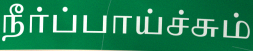
நீர்ப்பாய்ச்சும்